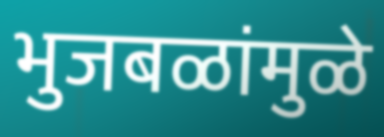
भुजबळांमुळे